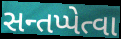
સન્તપ્પેત્વા